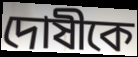
দোষীকে